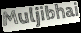
Muljibhai